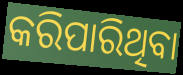
କରିପାରିଥିବା